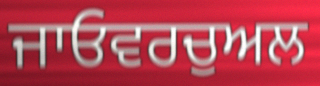
ਜਾਓਵਰਚੁਅਲ